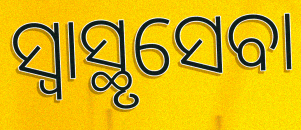
ସ୍ୱାସ୍ଥୃସେବା